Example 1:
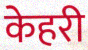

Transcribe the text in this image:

केहरी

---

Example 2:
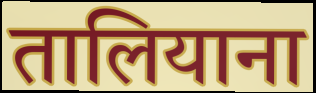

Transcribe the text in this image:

तालियाना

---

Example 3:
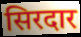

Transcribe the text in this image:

सिरदार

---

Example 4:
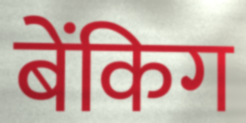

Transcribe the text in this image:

बेंकिग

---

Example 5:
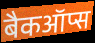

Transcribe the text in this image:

बैकऑप्स